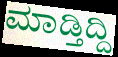
ಮಾಡ್ತಿದ್ದಿ